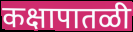
कक्षापातळी